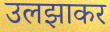
उलझाकर